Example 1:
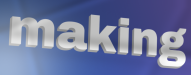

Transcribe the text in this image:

making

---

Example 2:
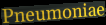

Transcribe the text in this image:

Pneumoniae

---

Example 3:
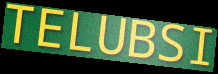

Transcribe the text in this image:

TELUBSI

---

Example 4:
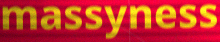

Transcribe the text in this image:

massyness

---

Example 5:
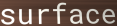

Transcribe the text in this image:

surface